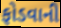
ફોડવાની